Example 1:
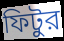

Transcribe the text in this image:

ফিটুর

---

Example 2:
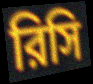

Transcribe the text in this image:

রিসি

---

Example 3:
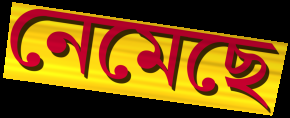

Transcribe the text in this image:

নেমেছে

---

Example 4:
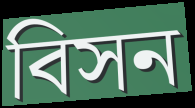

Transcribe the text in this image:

বিসন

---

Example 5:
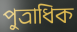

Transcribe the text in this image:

পুত্রাধিক